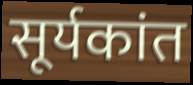
सूर्यकांत